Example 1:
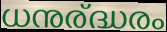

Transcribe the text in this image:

ധനുര്ദ്ധരം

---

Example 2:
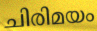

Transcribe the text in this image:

ചിരിമയം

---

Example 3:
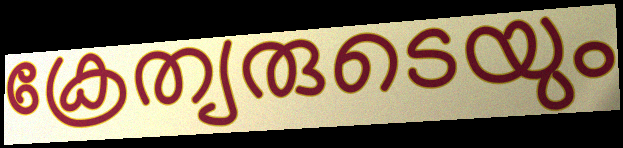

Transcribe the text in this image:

ക്രേത്യരുടെയും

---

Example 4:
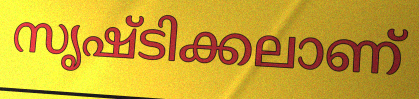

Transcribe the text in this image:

സൃഷ്ടിക്കലാണ്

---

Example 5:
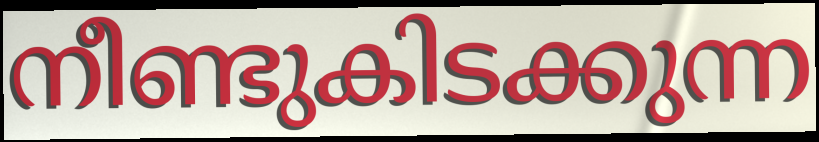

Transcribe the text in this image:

നീണ്ടുകിടക്കുന്ന